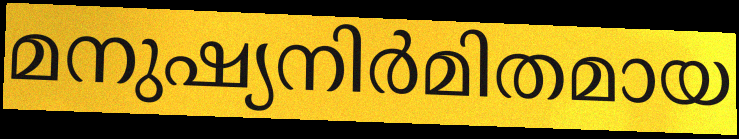
മനുഷ്യനിർമിതമായ